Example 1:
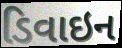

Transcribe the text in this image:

ડિવાઇન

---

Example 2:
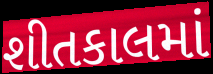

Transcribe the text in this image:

શીતકાલમાં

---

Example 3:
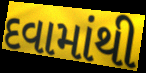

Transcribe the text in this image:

દવામાંથી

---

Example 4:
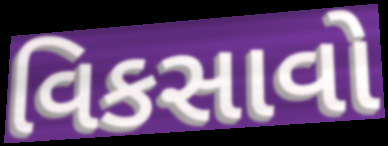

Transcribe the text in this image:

વિકસાવો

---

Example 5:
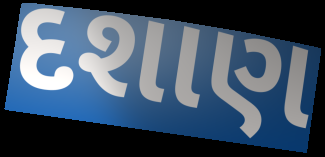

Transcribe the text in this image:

દશાણ